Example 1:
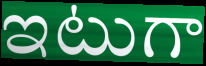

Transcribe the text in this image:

ఇటుగా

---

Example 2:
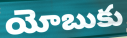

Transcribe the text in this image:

యోబుకు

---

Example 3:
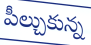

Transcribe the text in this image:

పీల్చుకున్న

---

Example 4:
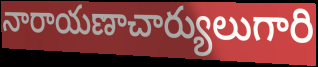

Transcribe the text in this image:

నారాయణాచార్యులుగారి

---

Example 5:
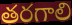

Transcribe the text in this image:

తరగాలి